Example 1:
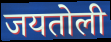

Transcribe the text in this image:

जयतोली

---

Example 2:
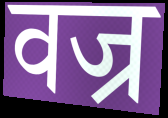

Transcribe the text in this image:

वज्र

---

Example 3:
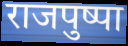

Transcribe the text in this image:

राजपुष्पा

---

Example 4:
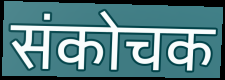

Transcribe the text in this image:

संकोचक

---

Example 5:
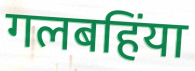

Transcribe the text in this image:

गलबहिंया